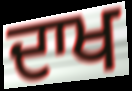
ਦਾਖ